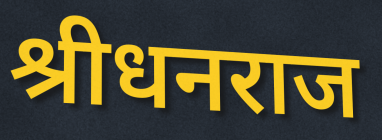
श्रीधनराज